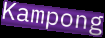
Kampong